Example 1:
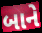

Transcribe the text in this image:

બાને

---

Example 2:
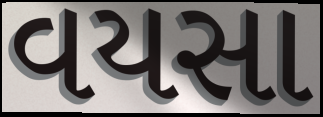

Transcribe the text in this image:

વયસા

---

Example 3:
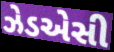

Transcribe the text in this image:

ઝેડએસી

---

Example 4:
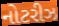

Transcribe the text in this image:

નોટરીઝ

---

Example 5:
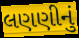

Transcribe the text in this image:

લણણીનું